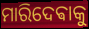
ମାରିଦେଵାକୁ